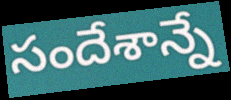
సందేశాన్నే